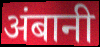
अंबानी